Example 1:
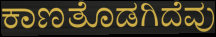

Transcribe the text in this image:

ಕಾಣತೊಡಗಿದೆವು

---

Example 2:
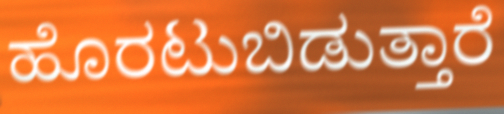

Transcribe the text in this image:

ಹೊರಟುಬಿಡುತ್ತಾರೆ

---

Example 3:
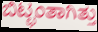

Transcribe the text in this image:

ಬಿಟ್ಟಂತಾಗಿತ್ತು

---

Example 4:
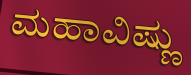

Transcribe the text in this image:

ಮಹಾವಿಷ್ಣು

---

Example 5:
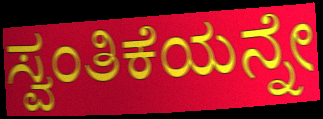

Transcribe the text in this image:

ಸ್ವಂತಿಕೆಯನ್ನೇ